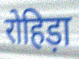
रोहिड़ा